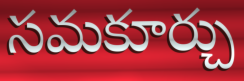
సమకూర్చు